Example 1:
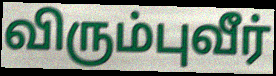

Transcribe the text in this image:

விரும்புவீர்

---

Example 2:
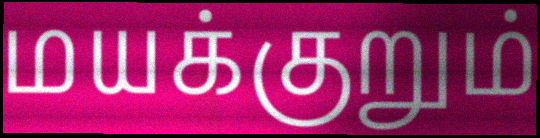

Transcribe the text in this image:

மயக்குறும்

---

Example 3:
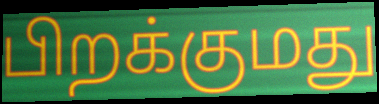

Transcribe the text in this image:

பிறக்குமது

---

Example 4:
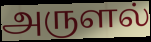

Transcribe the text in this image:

அருளல்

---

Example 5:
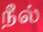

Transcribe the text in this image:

நீல்